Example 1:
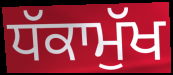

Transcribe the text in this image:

ਧੱਕਾਮੁੱਖ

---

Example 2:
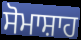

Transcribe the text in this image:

ਸੋਮਾਸ਼ਾਹ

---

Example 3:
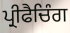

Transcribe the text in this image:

ਪ੍ਰੀਫੈਚਿੰਗ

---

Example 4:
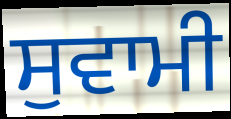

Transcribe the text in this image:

ਸੁਵਾਮੀ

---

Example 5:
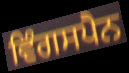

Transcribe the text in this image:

ਵਿੰਗਸਪੈਨ